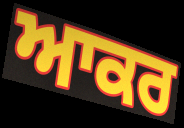
ਆਕਰ